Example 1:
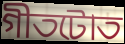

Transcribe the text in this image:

গীতটোত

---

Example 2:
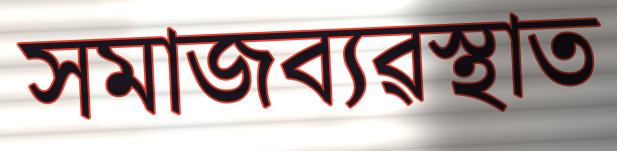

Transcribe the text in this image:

সমাজব্যৱস্থাত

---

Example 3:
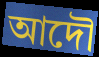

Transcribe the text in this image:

আদৌ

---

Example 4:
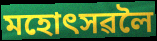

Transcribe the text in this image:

মহোৎসৱলৈ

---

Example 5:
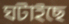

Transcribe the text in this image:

ঘটাইছে